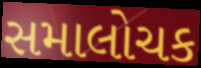
સમાલોચક